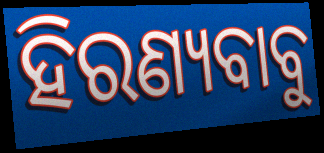
ହିରଣ୍ୟବାବୁ